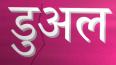
डुअल